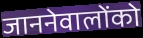
जाननेवालोंको